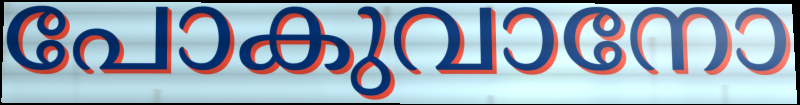
പോകുവാനോ